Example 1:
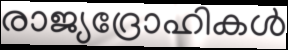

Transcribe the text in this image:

രാജ്യദ്രോഹികൾ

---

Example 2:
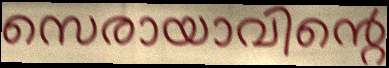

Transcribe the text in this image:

സെരായാവിന്റെ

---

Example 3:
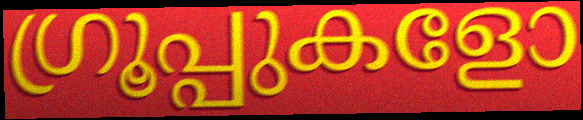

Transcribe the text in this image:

ഗ്രൂപ്പുകളോ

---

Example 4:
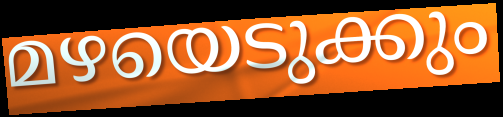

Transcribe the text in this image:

മഴയെടുക്കും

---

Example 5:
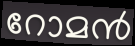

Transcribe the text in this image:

റോമൻ